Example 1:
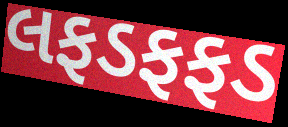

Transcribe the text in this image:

લફડફફડ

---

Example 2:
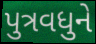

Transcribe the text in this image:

પુત્રવધુને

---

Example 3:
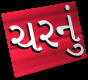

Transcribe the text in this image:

ચરનું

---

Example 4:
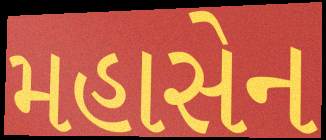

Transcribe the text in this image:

મહાસેન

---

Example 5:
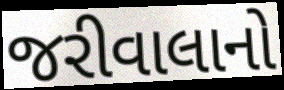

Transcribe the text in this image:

જરીવાલાનો